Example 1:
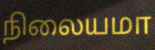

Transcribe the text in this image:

நிலையமா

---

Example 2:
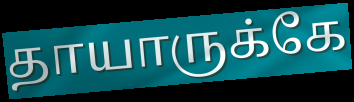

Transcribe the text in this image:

தாயாருக்கே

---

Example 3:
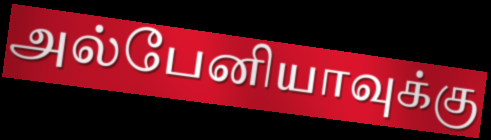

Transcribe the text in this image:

அல்பேனியாவுக்கு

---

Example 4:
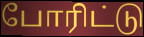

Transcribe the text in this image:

போரிட்டு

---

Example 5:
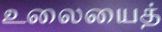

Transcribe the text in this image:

உலையைத்